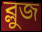
ব্লুজ